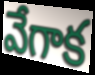
వేగాక